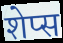
शेप्स